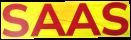
SAAS